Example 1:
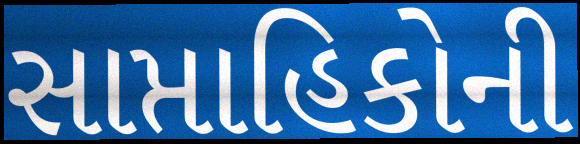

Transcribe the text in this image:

સાપ્તાહિકોની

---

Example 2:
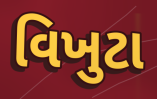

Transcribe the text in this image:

વિખુટા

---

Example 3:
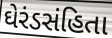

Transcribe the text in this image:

ઘેરંડસંહિતા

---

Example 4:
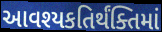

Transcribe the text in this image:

આવશ્યકતિર્થંક્તિમાં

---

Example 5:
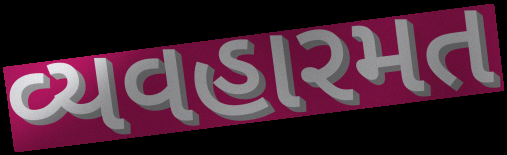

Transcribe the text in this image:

વ્યવહારમત